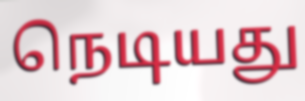
நெடியது